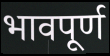
भावपूर्ण